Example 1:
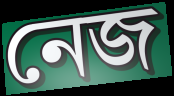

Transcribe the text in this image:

নেজ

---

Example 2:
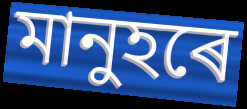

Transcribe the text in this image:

মানুহৰে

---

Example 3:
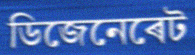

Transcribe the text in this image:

ডিজেনেৰেট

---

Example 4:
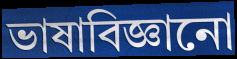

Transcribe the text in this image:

ভাষাবিজ্ঞানো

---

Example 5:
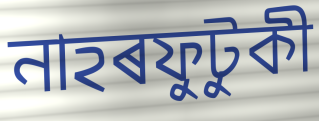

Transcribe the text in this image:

নাহৰফুটুকী